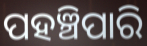
ପହଞ୍ଚିପାରି